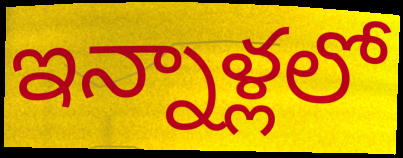
ఇన్నాళ్లలో